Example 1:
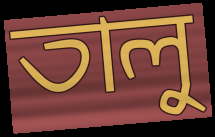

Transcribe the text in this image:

তালু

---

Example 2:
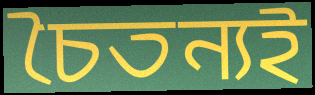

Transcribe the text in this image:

চৈতন্যই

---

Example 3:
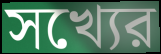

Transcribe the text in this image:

সখ্যের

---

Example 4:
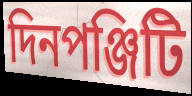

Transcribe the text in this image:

দিনপঞ্জিটি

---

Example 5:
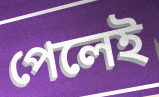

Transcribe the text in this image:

পেলেই